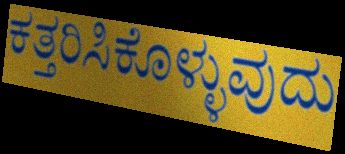
ಕತ್ತರಿಸಿಕೊಳ್ಳುವುದು